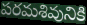
పరమశివునికి